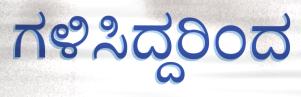
ಗಳಿಸಿದ್ದರಿಂದ